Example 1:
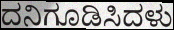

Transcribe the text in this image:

ದನಿಗೂಡಿಸಿದಳು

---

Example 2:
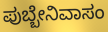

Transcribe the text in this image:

ಪುಬ್ಬೇನಿವಾಸಂ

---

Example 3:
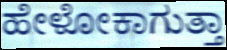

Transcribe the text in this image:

ಹೇಳೋಕಾಗುತ್ತಾ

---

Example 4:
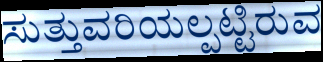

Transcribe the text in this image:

ಸುತ್ತುವರಿಯಲ್ಪಟ್ಟಿರುವ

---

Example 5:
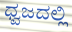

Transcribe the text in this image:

ಧ್ವಜದಲ್ಲಿ